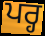
ਪਰ੍ਹ